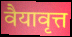
वैयावृत्त